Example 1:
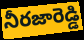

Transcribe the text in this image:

నీరజారెడ్డి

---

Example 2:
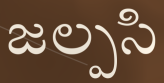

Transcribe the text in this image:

జల్పసి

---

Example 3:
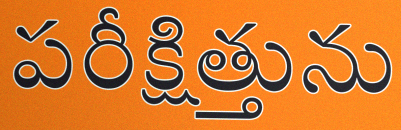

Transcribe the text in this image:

పరీక్షిత్తును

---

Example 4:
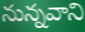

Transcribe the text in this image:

నున్నవాని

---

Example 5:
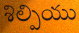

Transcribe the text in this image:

శిల్పియు